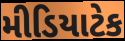
મીડિયાટેક